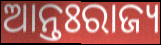
ଆନ୍ତଃରାଜ୍ୟ